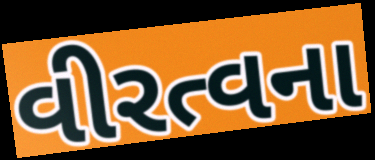
વીરત્વના